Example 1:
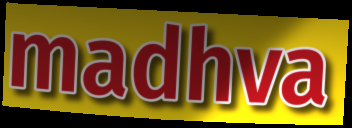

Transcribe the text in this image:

madhva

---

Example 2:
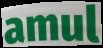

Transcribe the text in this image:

amul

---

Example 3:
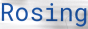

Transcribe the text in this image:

Rosing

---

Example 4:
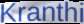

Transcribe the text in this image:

Kranthi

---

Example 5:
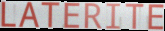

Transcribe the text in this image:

LATERITE